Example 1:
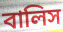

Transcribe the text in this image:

বালিস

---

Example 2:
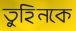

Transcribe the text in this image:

তুহিনকে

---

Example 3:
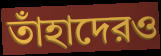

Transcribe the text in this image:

তাঁহাদেরও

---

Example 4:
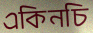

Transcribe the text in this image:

একিনচি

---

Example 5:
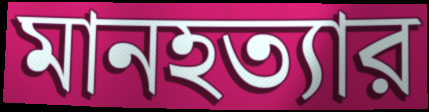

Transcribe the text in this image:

মানহত্যার